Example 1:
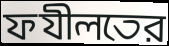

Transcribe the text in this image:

ফযীলতের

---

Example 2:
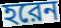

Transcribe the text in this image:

হরেন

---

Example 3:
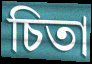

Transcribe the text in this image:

চিতা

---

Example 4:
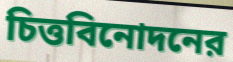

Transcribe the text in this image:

চিত্তবিনোদনের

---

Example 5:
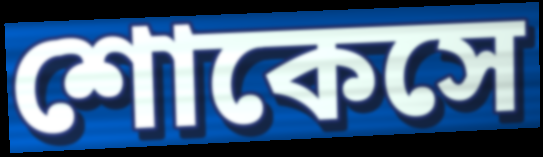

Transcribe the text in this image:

শোকেসে